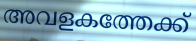
അവളകത്തേക്ക്